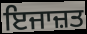
ਇਜਾਜ਼ਤ